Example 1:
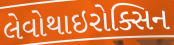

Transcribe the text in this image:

લેવોથાઇરોક્સિન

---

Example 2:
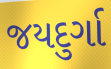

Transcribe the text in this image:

જયદુર્ગા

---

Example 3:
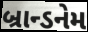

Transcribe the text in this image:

બ્રાન્ડનેમ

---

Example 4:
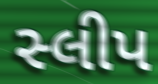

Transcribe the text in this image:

સ્લીપ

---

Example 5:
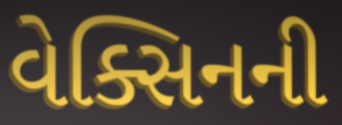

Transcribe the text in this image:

વેક્સિનની